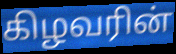
கிழவரின்